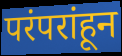
परंपरांहून